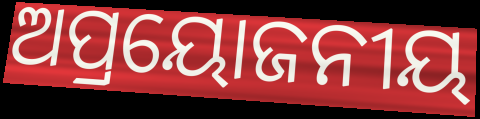
ଅପ୍ରୟୋଜନୀୟ